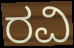
ರವಿ